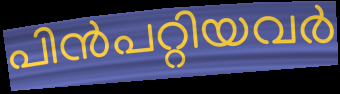
പിൻപറ്റിയവർ